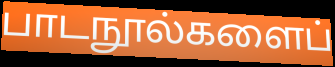
பாடநூல்களைப்